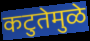
कटुतेमुळे